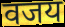
वजय